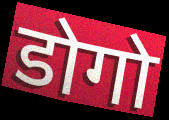
डोगो